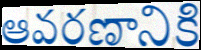
ఆవరణానికి